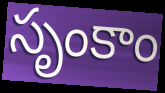
సృంకాం